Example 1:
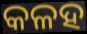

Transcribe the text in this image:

କଳହ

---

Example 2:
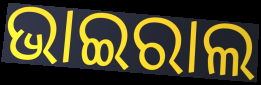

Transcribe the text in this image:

ଭାଇରାଲ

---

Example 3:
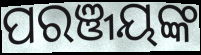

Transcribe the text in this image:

ପରଞ୍ଜୟଙ୍କ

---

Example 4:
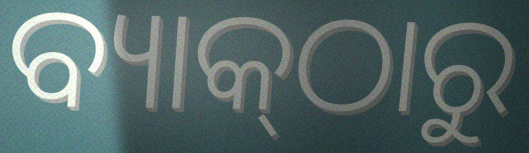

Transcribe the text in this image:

ବ୍ୟାକ୍‌ଠାରୁ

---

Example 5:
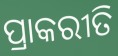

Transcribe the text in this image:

ପ୍ରାକରୀତି